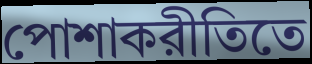
পোশাকরীতিতে